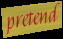
pretend